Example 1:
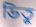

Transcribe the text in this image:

ভিতু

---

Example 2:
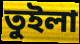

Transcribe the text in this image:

তুইলা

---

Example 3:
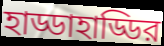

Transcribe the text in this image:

হাড্ডাহাড্ডির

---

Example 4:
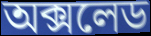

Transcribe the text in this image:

অক্সলেড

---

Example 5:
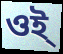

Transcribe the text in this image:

ওই্